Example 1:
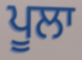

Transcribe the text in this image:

ਪੂਲਾ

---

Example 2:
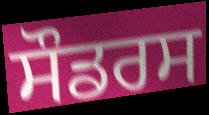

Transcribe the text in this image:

ਸੌਡਰਸ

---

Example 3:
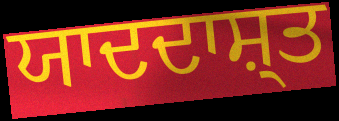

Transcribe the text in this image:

ਯਾਦਦਾਸ਼੍ਤ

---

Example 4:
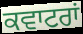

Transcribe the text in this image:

ਕਵਾਟਰਾਂ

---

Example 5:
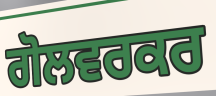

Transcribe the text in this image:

ਗੋਲਵਰਕਰ